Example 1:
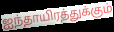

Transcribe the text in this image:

ஐந்தாயிரத்துக்கும்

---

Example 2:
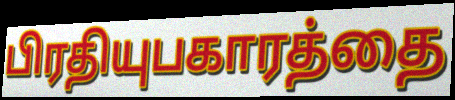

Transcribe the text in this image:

பிரதியுபகாரத்தை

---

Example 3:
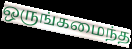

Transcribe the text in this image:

ஒருங்கமைந்த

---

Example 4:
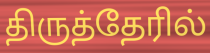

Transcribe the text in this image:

திருத்தேரில்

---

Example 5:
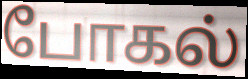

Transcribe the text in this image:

போகல்